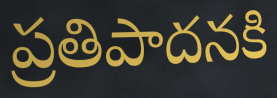
ప్రతిపాదనకి